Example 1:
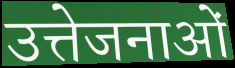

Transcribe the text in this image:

उत्तेजनाओं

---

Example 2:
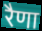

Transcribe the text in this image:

रैणा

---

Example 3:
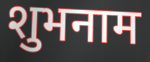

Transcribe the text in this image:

शुभनाम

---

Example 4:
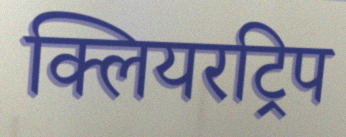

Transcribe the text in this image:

क्लियरट्रिप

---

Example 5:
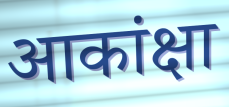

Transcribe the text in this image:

आकांक्षा